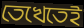
তেখেতেই